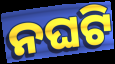
ନଘଟି